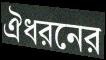
ঐধরনের